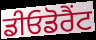
ਡੀਓਡੋਰੈਂਟ